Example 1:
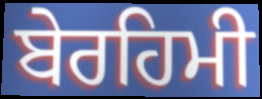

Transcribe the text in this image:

ਬੇਰਹਿਮੀ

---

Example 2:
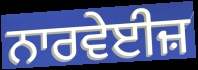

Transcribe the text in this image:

ਨਾਰਵੇਈਜ਼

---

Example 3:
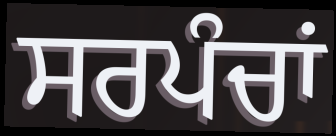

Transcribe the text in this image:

ਸਰਪੰਚਾਂ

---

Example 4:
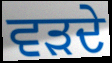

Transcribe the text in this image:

ਵੜਦੇ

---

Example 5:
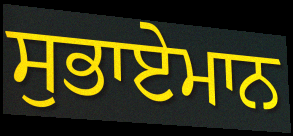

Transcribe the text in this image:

ਸੁਭਾਏਮਾਨ